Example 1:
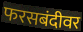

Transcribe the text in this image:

फरसबंदीवर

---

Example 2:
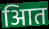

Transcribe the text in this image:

आित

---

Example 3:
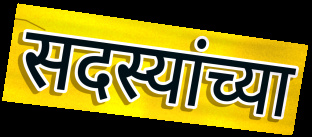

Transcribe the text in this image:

सदस्यांच्या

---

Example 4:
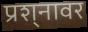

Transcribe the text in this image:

प्रश्नावर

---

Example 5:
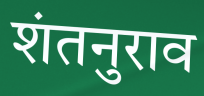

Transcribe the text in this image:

शंतनुराव